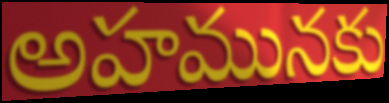
అహమునకు